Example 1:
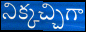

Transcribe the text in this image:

నిక్కచ్చిగా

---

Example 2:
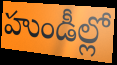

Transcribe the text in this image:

హుండీల్లో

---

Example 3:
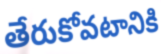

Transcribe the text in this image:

తేరుకోవటానికి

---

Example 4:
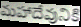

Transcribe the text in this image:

మహాదేవునికి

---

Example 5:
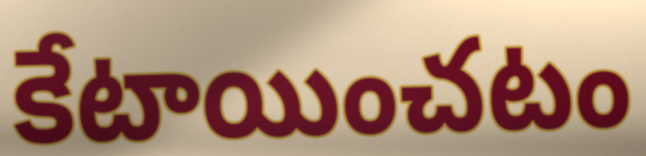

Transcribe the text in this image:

కేటాయించటం